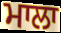
ਮਾਲਾ